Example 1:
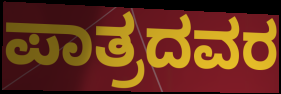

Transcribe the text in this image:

ಪಾತ್ರದವರ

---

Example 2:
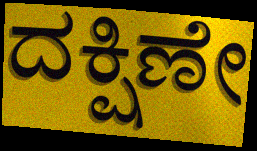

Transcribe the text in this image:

ದಕ್ಷಿಣೇ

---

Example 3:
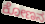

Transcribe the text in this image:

ಕೋಣನ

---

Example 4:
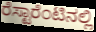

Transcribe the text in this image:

ರೆಸ್ಟಾರೆಂಟಿನಲ್ಲಿ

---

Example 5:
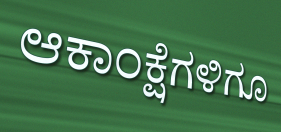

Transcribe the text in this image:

ಆಕಾಂಕ್ಷೆಗಳಿಗೂ